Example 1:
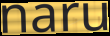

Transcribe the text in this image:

naru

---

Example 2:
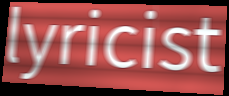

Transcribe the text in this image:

lyricist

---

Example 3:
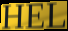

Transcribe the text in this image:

HEL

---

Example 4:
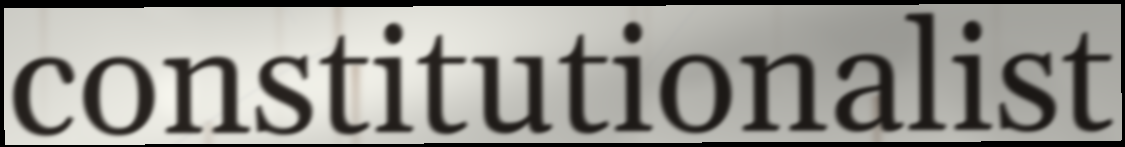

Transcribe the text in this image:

constitutionalist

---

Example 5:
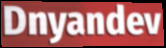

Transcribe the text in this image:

Dnyandev